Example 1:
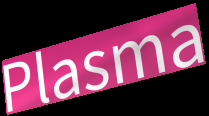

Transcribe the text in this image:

Plasma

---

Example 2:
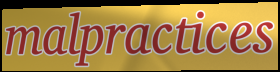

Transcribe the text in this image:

malpractices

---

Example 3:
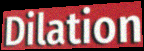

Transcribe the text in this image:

Dilation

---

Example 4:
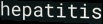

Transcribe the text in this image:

hepatitis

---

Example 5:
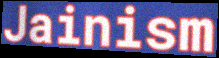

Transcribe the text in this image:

Jainism